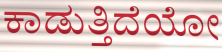
ಕಾಡುತ್ತಿದೆಯೋ